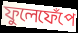
ফুলেফেঁপে